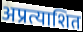
अप्रत्याशित